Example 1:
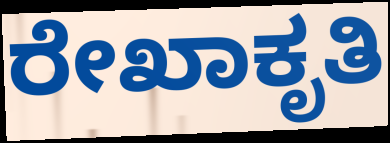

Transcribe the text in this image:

ರೇಖಾಕೃತಿ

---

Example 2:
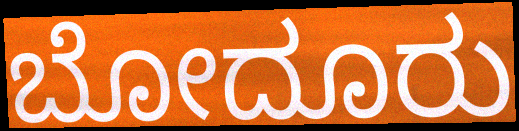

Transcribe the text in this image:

ಬೋದೂರು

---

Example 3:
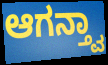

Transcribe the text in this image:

ಆಗನ್ತ್ವಾ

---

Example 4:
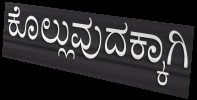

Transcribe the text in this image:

ಕೊಲ್ಲುವುದಕ್ಕಾಗಿ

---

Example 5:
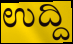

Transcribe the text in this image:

ಉದ್ದಿ